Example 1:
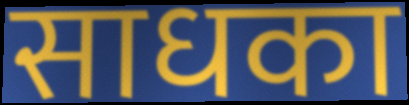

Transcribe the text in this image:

साधका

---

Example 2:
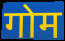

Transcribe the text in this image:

गोम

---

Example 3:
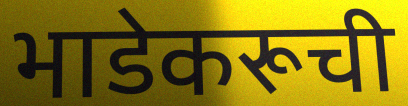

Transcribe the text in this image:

भाडेकरूची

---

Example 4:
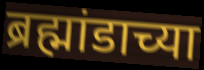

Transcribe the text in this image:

ब्रह्मांडाच्या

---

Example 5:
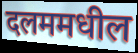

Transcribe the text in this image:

दलममधील